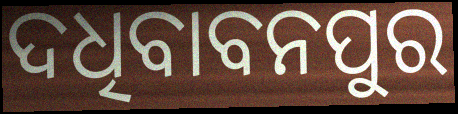
ଦଧିବାବନପୁର